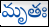
మృతః